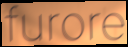
furore